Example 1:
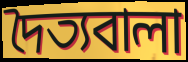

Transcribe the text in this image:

দৈত্যবালা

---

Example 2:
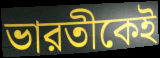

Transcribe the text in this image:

ভারতীকেই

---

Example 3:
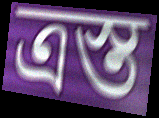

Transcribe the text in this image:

ত্রস্ত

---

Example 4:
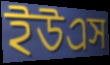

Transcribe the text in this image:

ইউএস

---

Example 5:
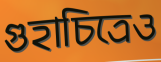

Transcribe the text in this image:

গুহাচিত্রেও